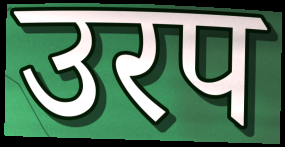
उरप